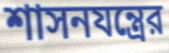
শাসনযন্ত্রের